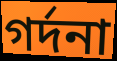
গর্দনা